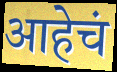
आहेचं